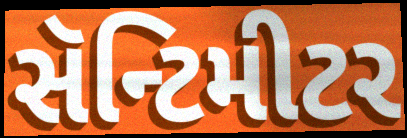
સૅન્ટિમીટર